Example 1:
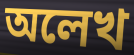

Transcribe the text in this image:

অলেখ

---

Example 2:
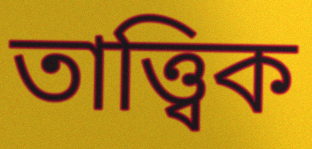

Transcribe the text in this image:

তাত্ত্বিক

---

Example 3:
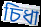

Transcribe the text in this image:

চিধা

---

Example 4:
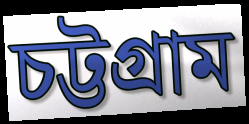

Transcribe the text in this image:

চট্টগ্ৰাম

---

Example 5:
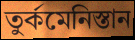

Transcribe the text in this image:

তুৰ্কমেনিস্তান